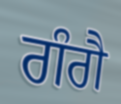
ਗੰਗੈ